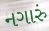
નગારું